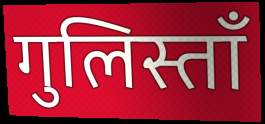
गुलिस्ताँ